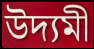
উদ্যমী